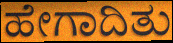
ಹೇಗಾದಿತು